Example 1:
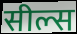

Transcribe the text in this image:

सील्स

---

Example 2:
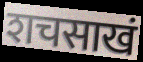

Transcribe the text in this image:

शचसाखं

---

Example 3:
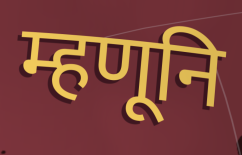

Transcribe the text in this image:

म्हणूनि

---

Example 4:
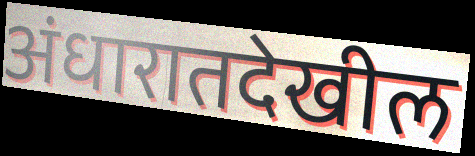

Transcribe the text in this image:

अंधारातदेखील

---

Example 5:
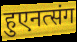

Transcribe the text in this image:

हुएनत्संग